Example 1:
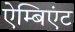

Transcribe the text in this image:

ऐम्बिएंट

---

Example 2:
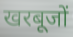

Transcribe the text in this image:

खरबूजों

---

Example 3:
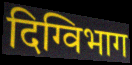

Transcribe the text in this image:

दिग्विभाग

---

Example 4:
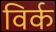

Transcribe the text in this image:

विर्क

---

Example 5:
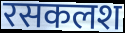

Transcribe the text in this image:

रसकलश